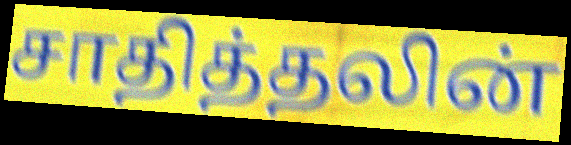
சாதித்தலின்